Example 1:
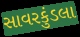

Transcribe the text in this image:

સાવરકુંડલા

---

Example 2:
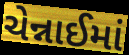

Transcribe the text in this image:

ચેન્નાઈમાં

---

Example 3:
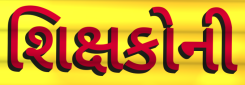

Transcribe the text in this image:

શિક્ષકોની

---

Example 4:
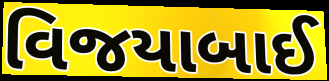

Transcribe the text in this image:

વિજયાબાઈ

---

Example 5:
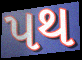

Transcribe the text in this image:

પથ